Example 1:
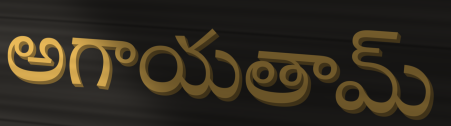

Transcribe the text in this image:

అగాయతామ్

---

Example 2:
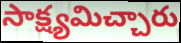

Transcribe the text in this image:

సాక్ష్యమిచ్చారు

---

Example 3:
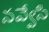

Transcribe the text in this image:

నవ్వేసి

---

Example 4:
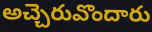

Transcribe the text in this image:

అచ్చెరువొందారు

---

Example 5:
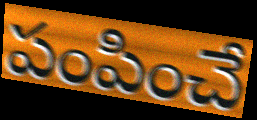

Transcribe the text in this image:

పంపించే